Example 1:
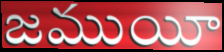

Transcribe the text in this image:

జముయీ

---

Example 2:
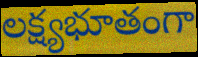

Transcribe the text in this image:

లక్ష్యభూతంగా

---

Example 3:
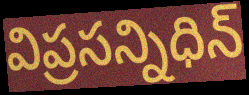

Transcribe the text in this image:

విప్రసన్నిధిన్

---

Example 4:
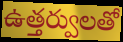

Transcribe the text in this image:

ఉత్తర్వులతో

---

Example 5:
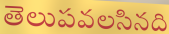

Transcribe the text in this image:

తెలుపవలసినది